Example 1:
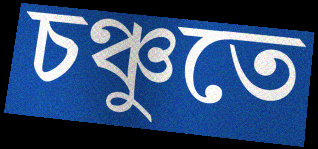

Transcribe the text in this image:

চঞ্চুতে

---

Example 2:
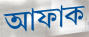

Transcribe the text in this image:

আফাক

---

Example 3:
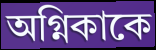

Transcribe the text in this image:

অগ্নিকাকে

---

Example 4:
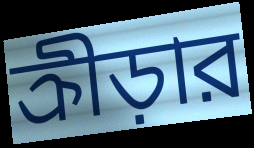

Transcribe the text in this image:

ক্রীড়ার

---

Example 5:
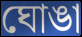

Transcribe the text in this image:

ঘোঙা